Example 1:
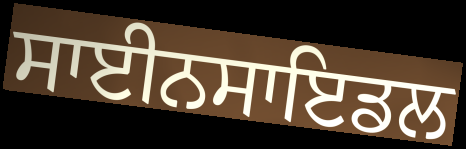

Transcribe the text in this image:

ਸਾਈਨਸਾਇਡਲ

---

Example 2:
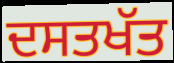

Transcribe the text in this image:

ਦਸਤਖੱਤ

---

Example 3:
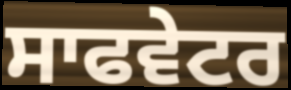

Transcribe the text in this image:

ਸਾਫਵੇਟਰ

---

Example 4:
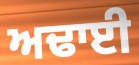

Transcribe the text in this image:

ਅਢਾਈ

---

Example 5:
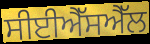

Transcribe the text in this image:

ਸੀਈਐੱਸਐੱਲ